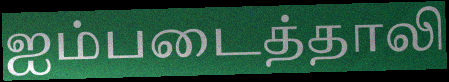
ஐம்படைத்தாலி